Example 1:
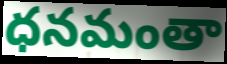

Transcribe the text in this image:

ధనమంతా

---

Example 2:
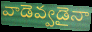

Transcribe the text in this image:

వాడెవ్వడైనా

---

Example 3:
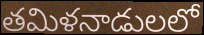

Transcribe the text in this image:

తమిళనాడులలో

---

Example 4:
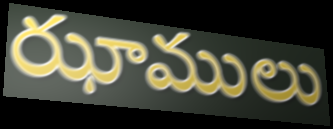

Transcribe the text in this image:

ఝాములు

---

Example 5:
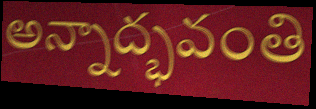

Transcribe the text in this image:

అన్నాద్భవంతి